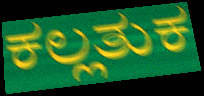
ಕಲ್ಲತುಕ